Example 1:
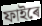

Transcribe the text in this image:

ফাইৰে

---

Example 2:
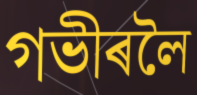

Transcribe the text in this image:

গভীৰলৈ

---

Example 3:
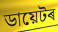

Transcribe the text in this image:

ডায়েটৰ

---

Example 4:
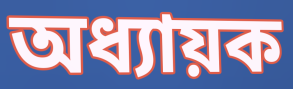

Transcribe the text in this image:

অধ্যায়ক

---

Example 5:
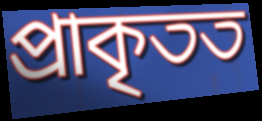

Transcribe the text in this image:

প্ৰাকৃতত